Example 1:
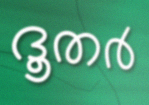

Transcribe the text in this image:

ദൂതർ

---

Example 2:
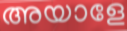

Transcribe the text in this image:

അയാളേ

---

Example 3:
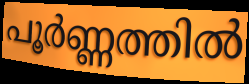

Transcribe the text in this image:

പൂർണ്ണത്തിൽ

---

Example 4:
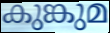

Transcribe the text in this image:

കുങ്കുമ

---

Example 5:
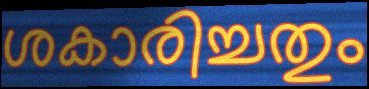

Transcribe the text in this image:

ശകാരിച്ചതും